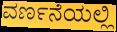
ವರ್ಣನೆಯಲ್ಲಿ